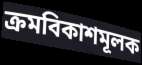
ক্রমবিকাশমূলক